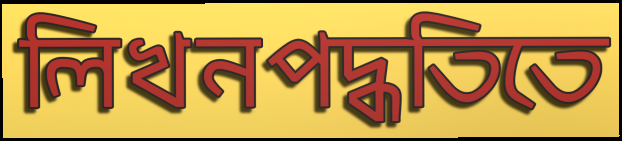
লিখনপদ্ধতিতে